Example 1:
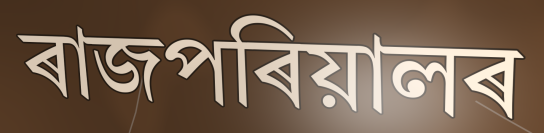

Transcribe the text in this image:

ৰাজপৰিয়ালৰ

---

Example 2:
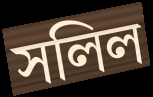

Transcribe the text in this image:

সলিল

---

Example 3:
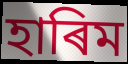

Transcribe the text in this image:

হাৰিম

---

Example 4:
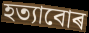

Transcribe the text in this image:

হত্যাবোৰ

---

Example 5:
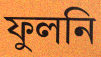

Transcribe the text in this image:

ফুলনি